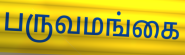
பருவமங்கை